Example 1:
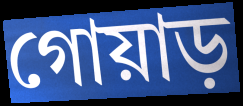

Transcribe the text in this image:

গোয়াড়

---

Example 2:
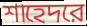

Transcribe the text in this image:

শাহেদরে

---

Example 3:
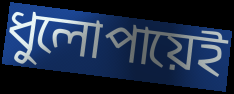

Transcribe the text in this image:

ধুলোপায়েই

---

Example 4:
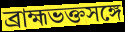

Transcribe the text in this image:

ব্রাহ্মভক্তসঙ্গে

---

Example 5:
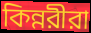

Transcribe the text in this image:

কিন্নরীরা